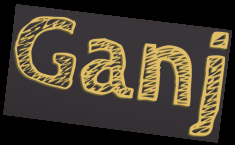
Ganj